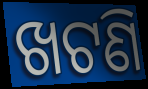
ଖଟଣି